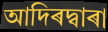
আদিৰদ্বাৰা